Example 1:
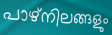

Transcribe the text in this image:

പാഴ്നിലങ്ങളും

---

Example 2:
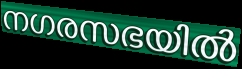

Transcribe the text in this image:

നഗരസഭയിൽ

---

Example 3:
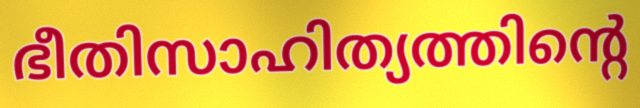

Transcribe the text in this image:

ഭീതിസാഹിത്യത്തിന്റെ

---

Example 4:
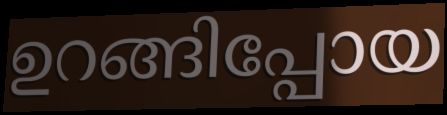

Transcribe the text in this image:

ഉറങ്ങിപ്പോയ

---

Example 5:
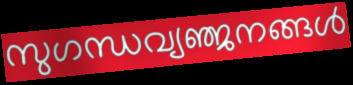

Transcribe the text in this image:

സുഗന്ധവ്യഞ്ജനങ്ങൾ